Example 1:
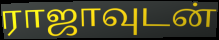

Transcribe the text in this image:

ராஜாவுடன்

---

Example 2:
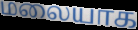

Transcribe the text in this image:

மலையாக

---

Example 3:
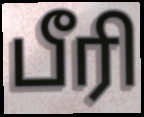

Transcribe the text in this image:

பீரி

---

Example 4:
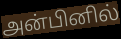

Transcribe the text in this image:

அன்பினில்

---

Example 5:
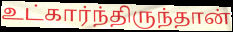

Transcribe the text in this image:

உட்கார்ந்திருந்தான்